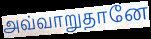
அவ்வாறுதானே